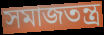
সমাজতন্ত্র